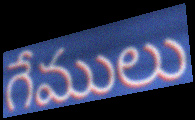
గేములు